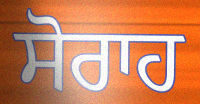
ਸੋਰਾਹ